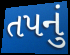
તપનું